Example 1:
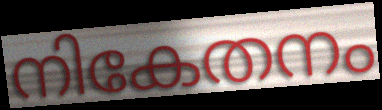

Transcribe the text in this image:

നികേതനം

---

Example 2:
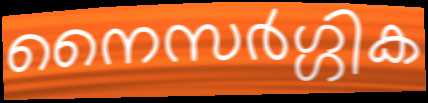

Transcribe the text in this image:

നൈസർഗ്ഗിക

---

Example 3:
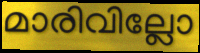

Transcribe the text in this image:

മാരിവില്ലോ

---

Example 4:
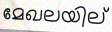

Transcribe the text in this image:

മേഖലയില്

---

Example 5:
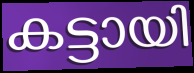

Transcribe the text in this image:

കട്ടായി